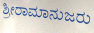
ಶ್ರೀರಾಮಾನುಜರು